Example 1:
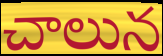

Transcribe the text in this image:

చాలున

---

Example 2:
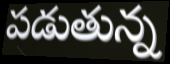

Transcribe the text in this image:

పడుతున్న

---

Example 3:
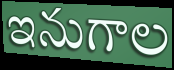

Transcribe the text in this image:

ఇనుగాల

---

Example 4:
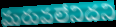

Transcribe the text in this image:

మరువలేనిదని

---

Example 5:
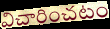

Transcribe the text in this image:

విచారించటం